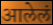
आलेलं